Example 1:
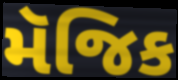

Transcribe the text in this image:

મૅજિક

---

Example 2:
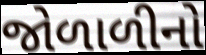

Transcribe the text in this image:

જોળાળીનો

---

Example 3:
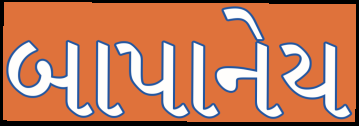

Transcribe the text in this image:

બાપાનેય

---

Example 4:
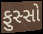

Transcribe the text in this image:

ફુસ્સો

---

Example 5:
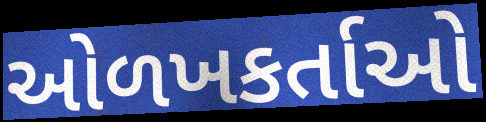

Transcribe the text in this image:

ઓળખકર્તાઓ